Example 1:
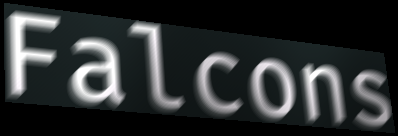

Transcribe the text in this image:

Falcons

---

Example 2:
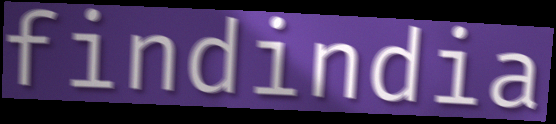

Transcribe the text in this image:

findindia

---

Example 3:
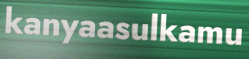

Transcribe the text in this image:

kanyaasulkamu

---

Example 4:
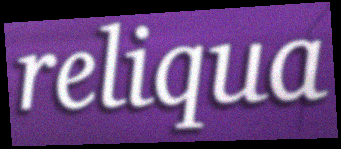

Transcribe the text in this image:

reliqua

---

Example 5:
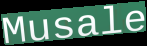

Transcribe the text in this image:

Musale